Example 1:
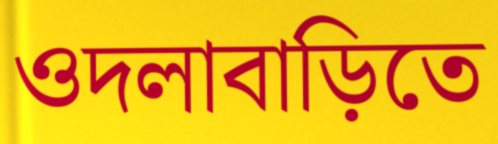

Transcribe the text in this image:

ওদলাবাড়িতে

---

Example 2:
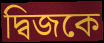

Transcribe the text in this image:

দ্বিজকে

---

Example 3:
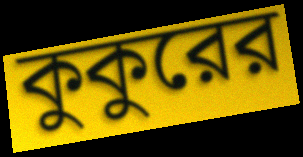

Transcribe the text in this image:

কুকুরের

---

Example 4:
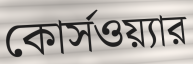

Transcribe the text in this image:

কোর্সওয়্যার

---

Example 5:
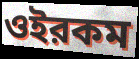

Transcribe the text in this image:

ওইরকম